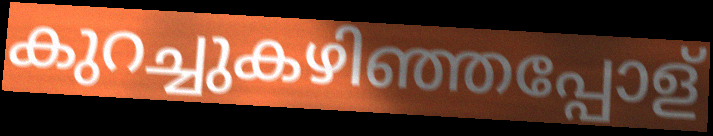
കുറച്ചുകഴിഞ്ഞപ്പോള്